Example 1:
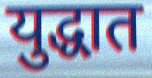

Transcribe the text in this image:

युद्धात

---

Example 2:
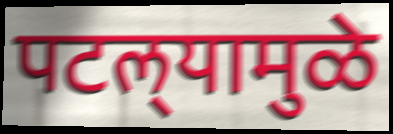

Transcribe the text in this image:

पटल्यामुळे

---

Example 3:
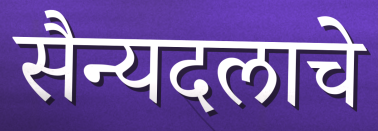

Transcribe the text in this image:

सैन्यदलाचे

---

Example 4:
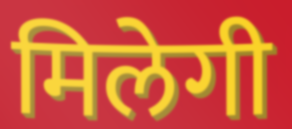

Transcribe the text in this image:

मिलेगी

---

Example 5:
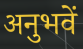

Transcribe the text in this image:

अनुभवें